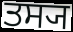
ਤਸ੍ਯ